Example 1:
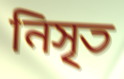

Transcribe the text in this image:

নিসৃত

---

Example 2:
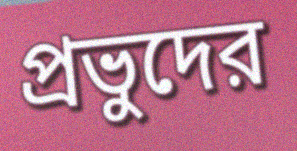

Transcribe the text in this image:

প্রভুদের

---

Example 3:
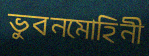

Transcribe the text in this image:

ভুবনমোহিনী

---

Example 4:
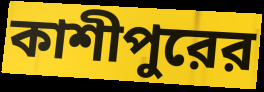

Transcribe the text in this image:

কাশীপুরের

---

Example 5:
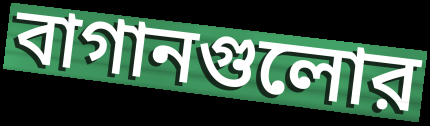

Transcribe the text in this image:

বাগানগুলোর